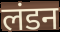
लंडन